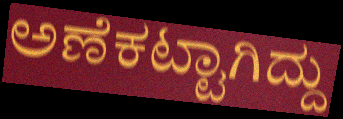
ಅಣೆಕಟ್ಟಾಗಿದ್ದು